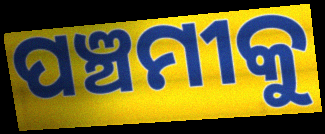
ପଞ୍ଚମୀକୁ